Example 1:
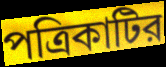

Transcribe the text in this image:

পত্রিকাটির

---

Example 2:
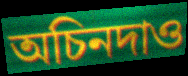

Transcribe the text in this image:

অচিনদাও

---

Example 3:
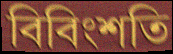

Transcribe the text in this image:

বিবিংশতি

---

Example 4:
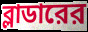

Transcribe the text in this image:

ব্লাডারের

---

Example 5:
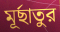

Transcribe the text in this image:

মূর্ছাতুর